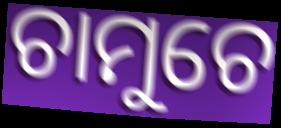
ଚାମୁଚେ